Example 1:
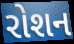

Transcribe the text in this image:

રોશન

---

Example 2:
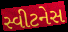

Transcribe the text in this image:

સ્વીટનેસ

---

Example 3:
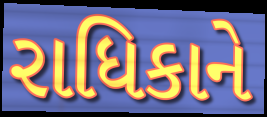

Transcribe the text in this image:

રાધિકાને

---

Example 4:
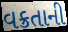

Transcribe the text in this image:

વક્રતાની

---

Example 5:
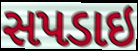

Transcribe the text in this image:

સપડાઇ